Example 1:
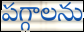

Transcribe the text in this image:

పగ్గాలను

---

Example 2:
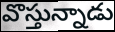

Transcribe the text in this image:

వొస్తున్నాడు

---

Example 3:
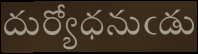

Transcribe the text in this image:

దుర్యోధనుఁడు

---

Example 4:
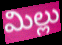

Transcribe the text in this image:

మిల్లు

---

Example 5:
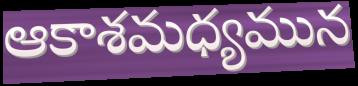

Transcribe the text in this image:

ఆకాశమధ్యమున